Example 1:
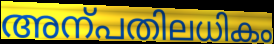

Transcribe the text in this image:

അന്പതിലധികം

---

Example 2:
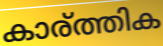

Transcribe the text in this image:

കാര്ത്തിക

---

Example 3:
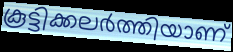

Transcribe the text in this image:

കൂട്ടിക്കലർത്തിയാണ്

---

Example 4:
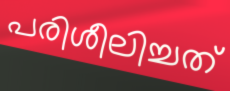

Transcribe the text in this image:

പരിശീലിച്ചത്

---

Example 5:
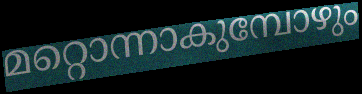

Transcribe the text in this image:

മറ്റൊന്നാകുമ്പോഴും